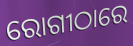
ରୋଗୀଠାରେ